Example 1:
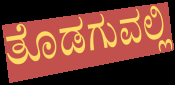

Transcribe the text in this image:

ತೊಡಗುವಲ್ಲಿ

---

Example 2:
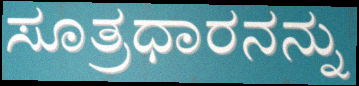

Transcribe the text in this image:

ಸೂತ್ರಧಾರನನ್ನು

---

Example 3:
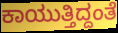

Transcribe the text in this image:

ಕಾಯುತ್ತಿದ್ದಂತೆ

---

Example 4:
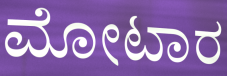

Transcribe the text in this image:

ಮೋಟಾರ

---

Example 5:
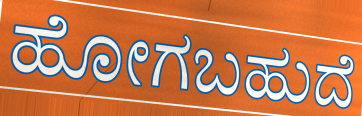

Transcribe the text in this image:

ಹೋಗಬಹುದೆ